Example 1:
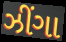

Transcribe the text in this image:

ઝીંગા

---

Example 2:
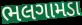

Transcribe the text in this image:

ભલગામડા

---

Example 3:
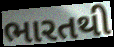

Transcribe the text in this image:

ભારતથી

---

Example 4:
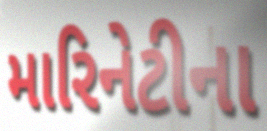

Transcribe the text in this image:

મારિનેટીના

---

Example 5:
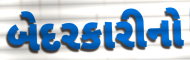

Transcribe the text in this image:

બેદરકારીનો